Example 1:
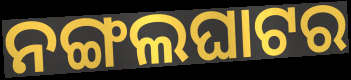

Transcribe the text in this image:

ନଙ୍ଗଲଘାଟର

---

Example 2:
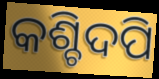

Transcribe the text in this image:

କଶ୍ଚିଦପି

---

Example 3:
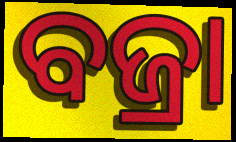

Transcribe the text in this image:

ବଜ୍ରା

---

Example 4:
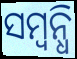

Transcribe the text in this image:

ସମ୍ବନ୍ଧି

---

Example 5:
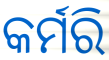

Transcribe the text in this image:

କର୍ମରି